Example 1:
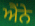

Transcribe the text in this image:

ਐਂਨੇ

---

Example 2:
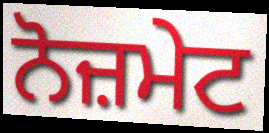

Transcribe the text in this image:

ਨੋਜ਼ਮੇਟ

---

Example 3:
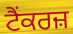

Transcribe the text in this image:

ਟੈਂਕਰਜ਼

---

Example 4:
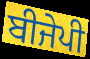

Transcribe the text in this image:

ਬੀਜੇਪੀ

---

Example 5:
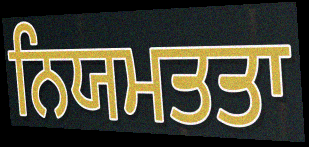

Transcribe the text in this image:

ਨਿਯਮਤਤਾ